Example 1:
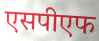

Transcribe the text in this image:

एसपीएफ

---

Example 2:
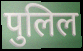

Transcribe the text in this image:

पुलिल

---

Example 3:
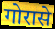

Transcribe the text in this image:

गोरासे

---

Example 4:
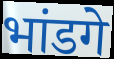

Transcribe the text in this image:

भांडगे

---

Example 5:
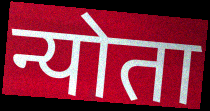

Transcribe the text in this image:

न्योता